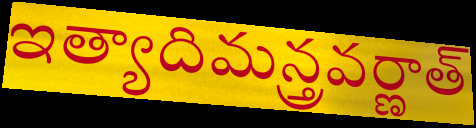
ఇత్యాదిమన్త్రవర్ణాత్